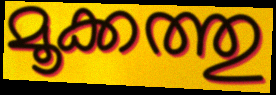
മൂക്കത്തു